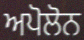
ਅਪੋਲੋਨ